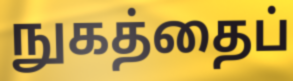
நுகத்தைப்